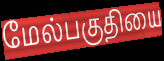
மேல்பகுதியை